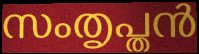
സംതൃപ്തൻ